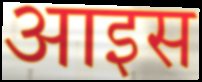
आइस